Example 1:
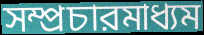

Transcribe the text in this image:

সম্প্রচারমাধ্যম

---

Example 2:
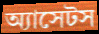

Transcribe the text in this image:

অ্যাসেটস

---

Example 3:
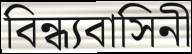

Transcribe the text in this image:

বিন্ধ্যবাসিনী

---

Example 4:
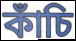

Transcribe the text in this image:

কাঁচি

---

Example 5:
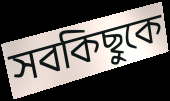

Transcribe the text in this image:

সবকিছুকে